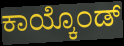
ಕಾಯ್ಕೊಂಡ್